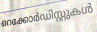
റെക്കോർഡിസ്റ്റുകൾ